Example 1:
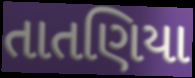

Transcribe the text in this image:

તાતણિયા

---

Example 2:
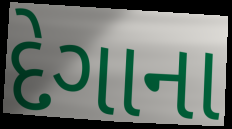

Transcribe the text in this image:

દેગાના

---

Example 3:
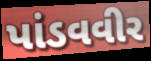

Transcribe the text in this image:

પાંડવવીર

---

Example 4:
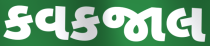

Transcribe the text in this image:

કવકજાલ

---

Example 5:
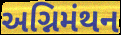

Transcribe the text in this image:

અગ્નિમંથન